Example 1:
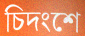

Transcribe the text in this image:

চিদংশে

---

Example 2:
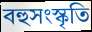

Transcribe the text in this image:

বহুসংস্কৃতি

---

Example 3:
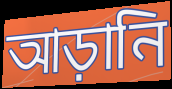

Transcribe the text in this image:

আড়ানি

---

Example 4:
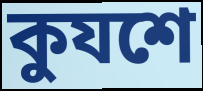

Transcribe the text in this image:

কুযশে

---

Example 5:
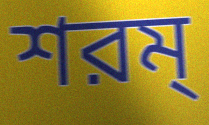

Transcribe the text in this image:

শরম্